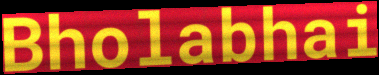
Bholabhai